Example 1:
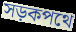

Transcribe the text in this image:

সড়কপথে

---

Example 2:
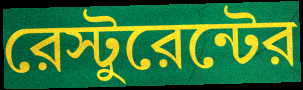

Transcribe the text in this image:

রেস্টুরেন্টের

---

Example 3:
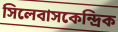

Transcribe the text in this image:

সিলেবাসকেন্দ্রিক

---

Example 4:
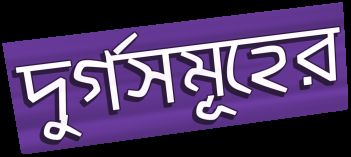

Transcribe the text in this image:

দুর্গসমূহের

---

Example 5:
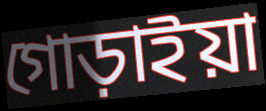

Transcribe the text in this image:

গোড়াইয়া